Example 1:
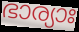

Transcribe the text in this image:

ഭാര്യാഃ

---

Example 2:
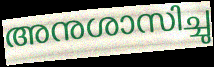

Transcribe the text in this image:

അനുശാസിച്ചു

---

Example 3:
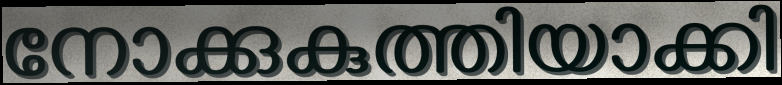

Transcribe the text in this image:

നോക്കുകുത്തിയാക്കി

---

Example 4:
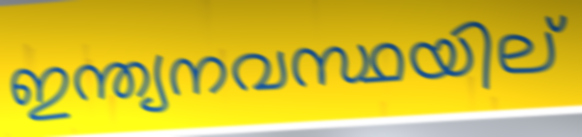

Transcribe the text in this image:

ഇന്ത്യനവസ്ഥയില്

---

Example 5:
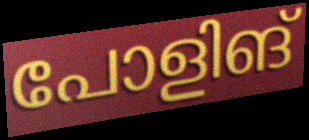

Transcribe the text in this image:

പോളിങ്